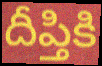
దీప్తికి